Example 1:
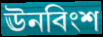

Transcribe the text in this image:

ঊনবিংশ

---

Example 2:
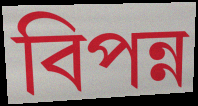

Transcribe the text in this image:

বিপন্ন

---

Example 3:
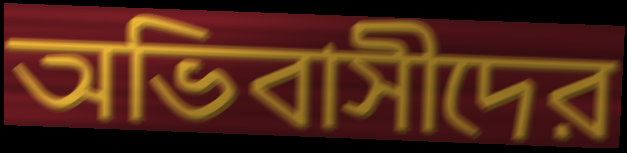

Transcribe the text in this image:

অভিবাসীদের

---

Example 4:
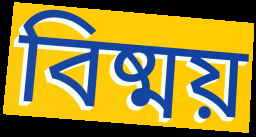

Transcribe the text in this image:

বিষ্ময়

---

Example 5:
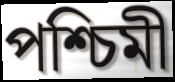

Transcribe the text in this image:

পশ্চিমী